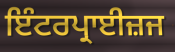
ਇੰਟਰਪ੍ਰਾਈਜ਼ਜ